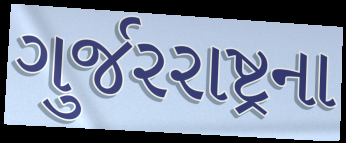
ગુર્જરરાષ્ટ્રના